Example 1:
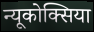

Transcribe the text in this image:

न्यूकोक्सिया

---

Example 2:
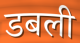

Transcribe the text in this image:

डबली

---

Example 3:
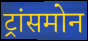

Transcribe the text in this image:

ट्रांसमोन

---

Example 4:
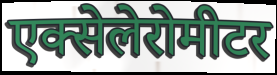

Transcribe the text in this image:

एक्सेलेरोमीटर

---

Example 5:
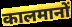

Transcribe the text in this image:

कालमानों